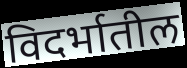
विदर्भातील